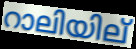
റാലിയില്